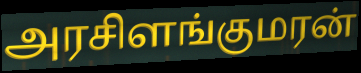
அரசிளங்குமரன்